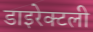
डाइरेक्टली